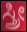
ಸ್ತ್ರೀ